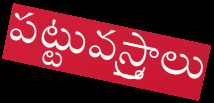
పట్టువస్ర్తాలు